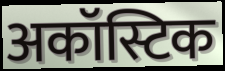
अकॉस्टिक